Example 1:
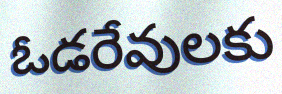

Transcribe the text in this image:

ఓడరేవులకు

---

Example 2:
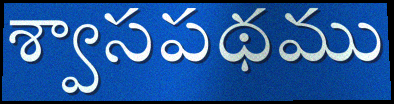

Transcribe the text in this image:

శ్వాసపథము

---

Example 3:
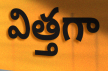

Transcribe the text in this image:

విత్తగా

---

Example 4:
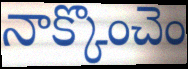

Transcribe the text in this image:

నాక్కొంచెం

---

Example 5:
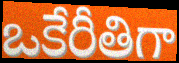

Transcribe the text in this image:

ఒకేరీతిగా